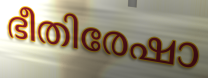
ഭീതിരേഷാ